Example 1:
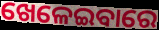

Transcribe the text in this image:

ଖେଳେଇବାରେ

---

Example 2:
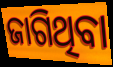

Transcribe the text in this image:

ଜାଗିଥିବା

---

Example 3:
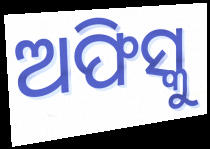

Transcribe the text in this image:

ଅଫିସ୍କୁ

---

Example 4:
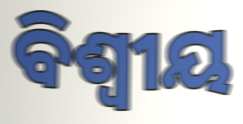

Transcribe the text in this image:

ବିଶ୍ଵୀୟ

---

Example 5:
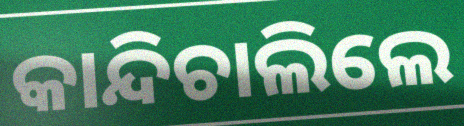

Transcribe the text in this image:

କାନ୍ଦିଚାଲିଲେ